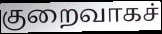
குறைவாகச்